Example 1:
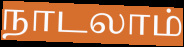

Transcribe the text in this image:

நாடலாம்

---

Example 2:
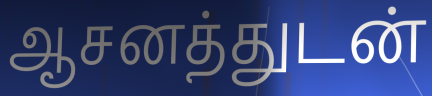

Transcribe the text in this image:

ஆசனத்துடன்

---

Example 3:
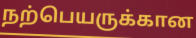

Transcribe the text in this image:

நற்பெயருக்கான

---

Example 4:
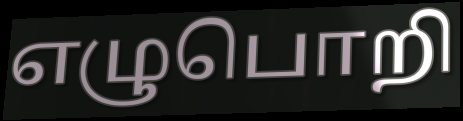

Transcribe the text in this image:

எழுபொறி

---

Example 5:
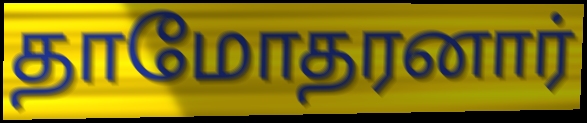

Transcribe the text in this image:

தாமோதரனார்